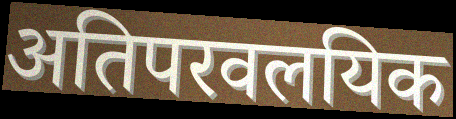
अतिपरवलयिक